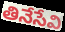
తినేసేవి